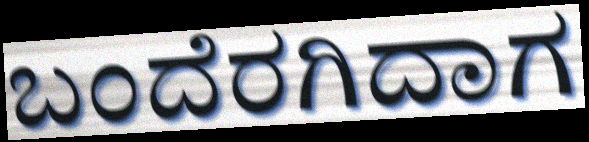
ಬಂದೆರಗಿದಾಗ